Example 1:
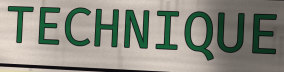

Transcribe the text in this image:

TECHNIQUE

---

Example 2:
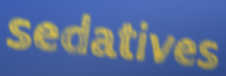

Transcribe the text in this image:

sedatives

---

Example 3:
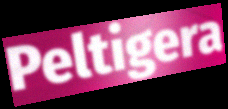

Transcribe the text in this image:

Peltigera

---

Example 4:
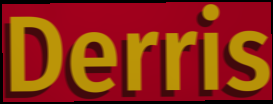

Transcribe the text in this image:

Derris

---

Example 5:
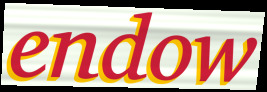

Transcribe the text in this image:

endow